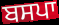
ਬਸਪਾ